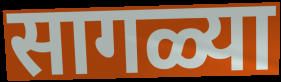
सागळ्या